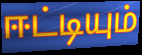
ஈட்டியும்